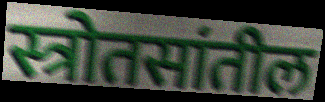
स्त्रोतसांतील